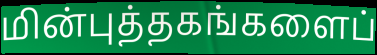
மின்புத்தகங்களைப்